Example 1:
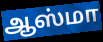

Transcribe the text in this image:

ஆஸ்மா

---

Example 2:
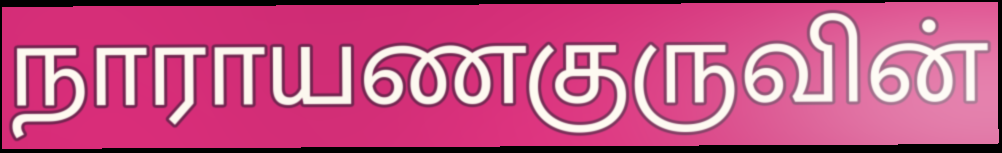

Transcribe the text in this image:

நாராயணகுருவின்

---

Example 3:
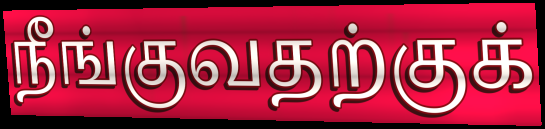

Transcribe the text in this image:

நீங்குவதற்குக்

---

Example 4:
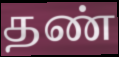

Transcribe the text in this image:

தண்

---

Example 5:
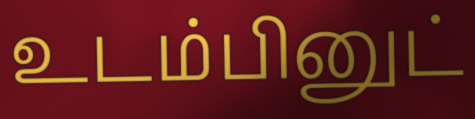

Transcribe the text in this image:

உடம்பினுட்